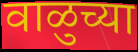
वाळुच्या